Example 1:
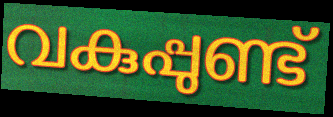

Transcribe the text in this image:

വകുപ്പുണ്ട്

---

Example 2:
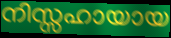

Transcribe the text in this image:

നിസ്സഹായായ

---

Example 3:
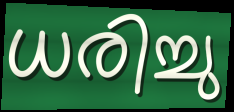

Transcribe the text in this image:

ധരിച്ചു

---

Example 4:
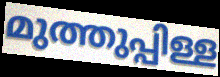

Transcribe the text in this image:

മുത്തുപ്പിള്ള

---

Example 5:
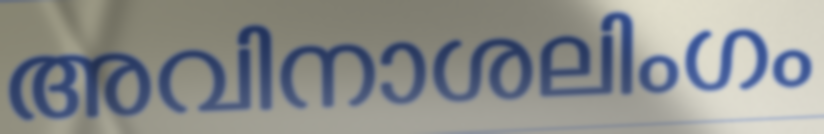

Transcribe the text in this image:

അവിനാശലിംഗം